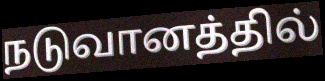
நடுவானத்தில்